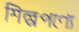
শিল্পপণ্যে